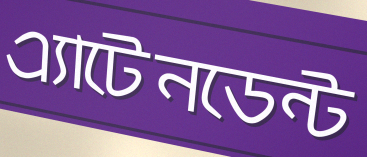
এ্যাটেনডেন্ট